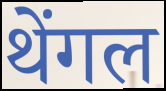
थेंगल